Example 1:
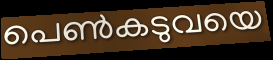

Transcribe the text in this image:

പെൺകടുവയെ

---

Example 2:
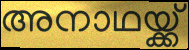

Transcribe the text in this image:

അനാഥയ്ക്ക്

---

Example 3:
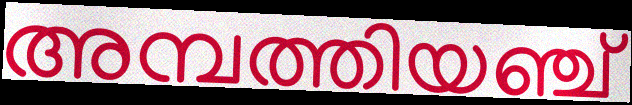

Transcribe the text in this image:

അമ്പത്തിയഞ്ച്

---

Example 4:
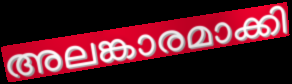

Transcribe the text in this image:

അലങ്കാരമാക്കി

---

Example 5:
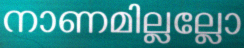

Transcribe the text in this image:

നാണമില്ലല്ലോ